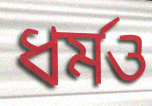
ধর্মও